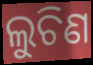
ଲୁଚିଣ